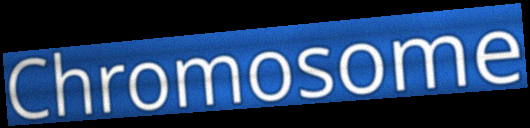
Chromosome